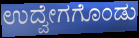
ಉದ್ವೇಗಗೊಂಡು